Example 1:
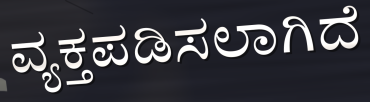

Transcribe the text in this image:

ವ್ಯಕ್ತಪಡಿಸಲಾಗಿದೆ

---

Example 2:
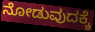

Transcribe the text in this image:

ನೋಡುವುದಕ್ಕೆ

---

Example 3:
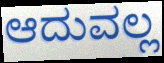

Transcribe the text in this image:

ಆದುವಲ್ಲ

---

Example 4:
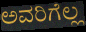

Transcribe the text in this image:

ಅವರಿಗೆಲ್ಲ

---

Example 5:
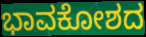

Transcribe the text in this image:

ಭಾವಕೋಶದ